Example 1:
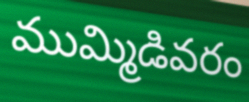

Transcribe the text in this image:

ముమ్మిడివరం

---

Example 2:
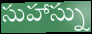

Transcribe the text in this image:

సుహాస్ను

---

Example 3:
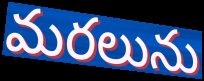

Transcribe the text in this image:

మరలును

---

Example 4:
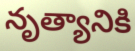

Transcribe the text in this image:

నృత్యానికి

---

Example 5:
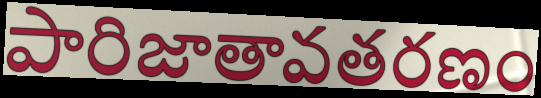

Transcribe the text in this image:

పారిజాతావతరణం